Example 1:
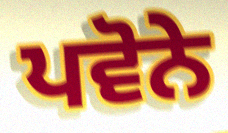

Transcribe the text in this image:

ਪਵੋਨੇ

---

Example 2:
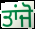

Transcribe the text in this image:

ਤਾਂਜੋ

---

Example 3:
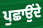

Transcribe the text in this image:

ਪੁਛਾਉਂਦੇ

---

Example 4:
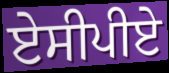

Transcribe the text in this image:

ਏਸੀਪੀਏ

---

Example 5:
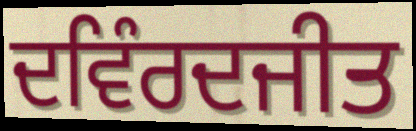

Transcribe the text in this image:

ਦਵਿੰਰਦਜੀਤ